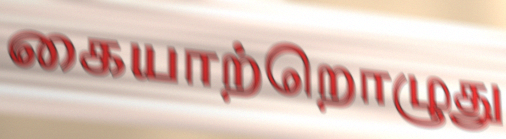
கையாற்றொழுது